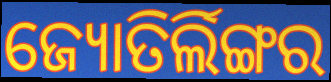
ଜ୍ୟୋତିର୍ଲିଙ୍ଗର